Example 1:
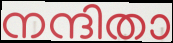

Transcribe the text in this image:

നന്ദിതാ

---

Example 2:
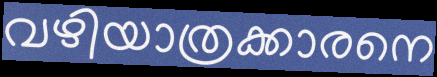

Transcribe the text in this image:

വഴിയാത്രക്കാരനെ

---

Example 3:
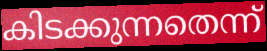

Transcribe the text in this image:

കിടക്കുന്നതെന്ന്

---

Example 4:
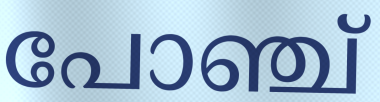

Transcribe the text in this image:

പോഞ്ച്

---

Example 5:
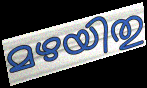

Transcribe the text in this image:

മഴയിതു